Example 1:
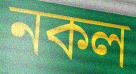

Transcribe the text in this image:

নকল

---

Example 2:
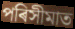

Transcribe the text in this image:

পৰিসীমাত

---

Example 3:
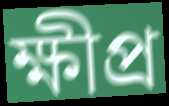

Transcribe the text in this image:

ক্ষীপ্ৰ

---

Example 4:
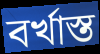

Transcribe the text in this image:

বৰ্খাস্ত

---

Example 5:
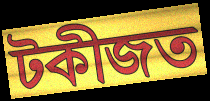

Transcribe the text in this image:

টকীজত